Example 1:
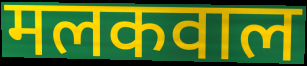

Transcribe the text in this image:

मलकवाल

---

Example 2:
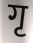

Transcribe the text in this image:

गृ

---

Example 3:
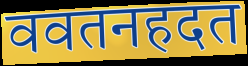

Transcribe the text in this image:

ववतनहदत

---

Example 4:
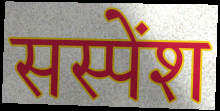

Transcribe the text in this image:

सस्पेंश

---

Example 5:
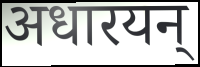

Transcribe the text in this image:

अधारयन्